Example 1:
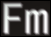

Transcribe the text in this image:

Fm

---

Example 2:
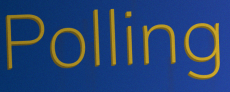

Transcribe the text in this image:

Polling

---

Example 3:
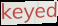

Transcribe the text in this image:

keyed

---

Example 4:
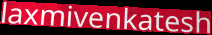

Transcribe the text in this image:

laxmivenkatesh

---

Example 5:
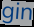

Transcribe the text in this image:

gin